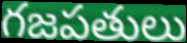
గజపతులు